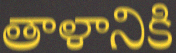
తాళానికి